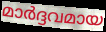
മാർദ്ദവമായ